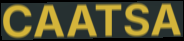
CAATSA